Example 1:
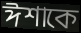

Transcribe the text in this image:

ঈশাকে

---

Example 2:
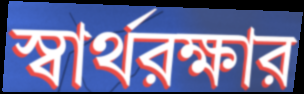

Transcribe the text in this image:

স্বার্থরক্ষার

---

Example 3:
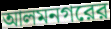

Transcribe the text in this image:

আলমনগরের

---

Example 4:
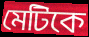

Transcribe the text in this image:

মেটিকে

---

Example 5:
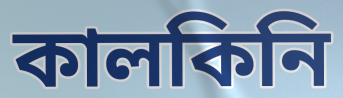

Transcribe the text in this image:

কালকিনি